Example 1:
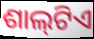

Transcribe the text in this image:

ଶାଲ୍‌ଟିଏ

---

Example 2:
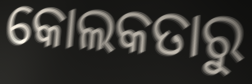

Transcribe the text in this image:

କୋଲକତାରୁ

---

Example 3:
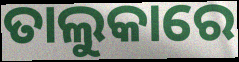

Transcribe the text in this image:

ତାଲୁକାରେ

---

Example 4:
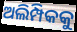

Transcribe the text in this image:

ଅଲିମ୍ପିକକୁ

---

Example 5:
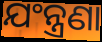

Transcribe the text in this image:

ଯଂନ୍ତ୍ରଣା